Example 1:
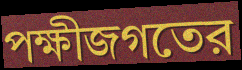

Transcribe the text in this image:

পক্ষীজগতের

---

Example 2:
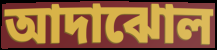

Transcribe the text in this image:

আদাঝোল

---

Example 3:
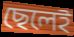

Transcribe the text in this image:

ছেলেই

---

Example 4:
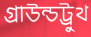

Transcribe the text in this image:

গ্রাউন্ডট্রুথ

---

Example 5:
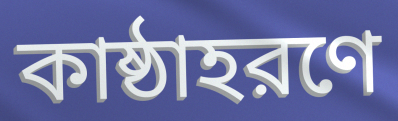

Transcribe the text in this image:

কাষ্ঠাহরণে